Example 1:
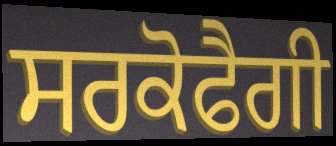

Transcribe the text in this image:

ਸਰਕੋਫੈਗੀ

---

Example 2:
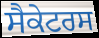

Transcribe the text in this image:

ਸੈਕੇਟਰਸ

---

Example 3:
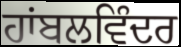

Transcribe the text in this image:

ਹਾਂਬਲਵਿੰਦਰ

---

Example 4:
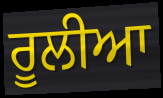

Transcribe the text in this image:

ਰੂਲੀਆ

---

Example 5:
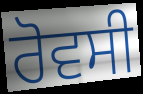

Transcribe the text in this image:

ਰੋਵਸੀ